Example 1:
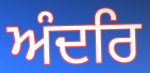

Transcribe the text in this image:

ਅੰਦਰਿ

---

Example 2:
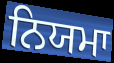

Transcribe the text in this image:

ਨਿਯਮਾ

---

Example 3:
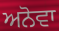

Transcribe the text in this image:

ਅਨੋਵਾ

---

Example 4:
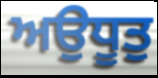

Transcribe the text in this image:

ਅਉਧੂਤੁ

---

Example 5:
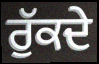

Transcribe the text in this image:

ਰੁੱਕਦੇ